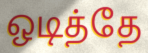
ஒடித்தே